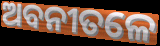
ଅବନୀତଳେ